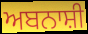
ਅਬਨਾਸ਼ੀ